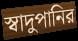
স্বাদুপানির